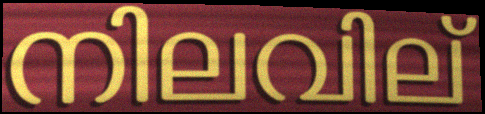
നിലവില്